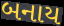
બનાય